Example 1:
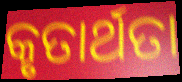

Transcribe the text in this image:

କୃତାର୍ଥତା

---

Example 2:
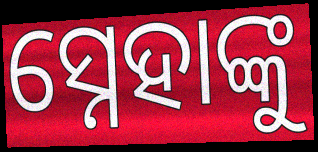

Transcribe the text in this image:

ସ୍ନେହାଙ୍କୁ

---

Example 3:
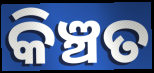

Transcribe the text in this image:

କିଞ୍ଚତ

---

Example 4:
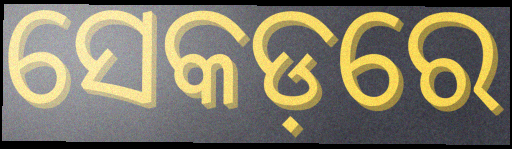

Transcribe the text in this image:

ସେକଡ଼ରେ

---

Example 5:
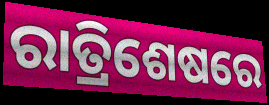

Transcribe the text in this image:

ରାତ୍ରିଶେଷରେ